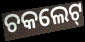
ଚକଲେଟ୍